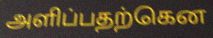
அளிப்பதற்கென